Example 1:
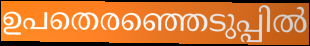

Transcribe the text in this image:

ഉപതെരഞ്ഞെടുപ്പിൽ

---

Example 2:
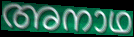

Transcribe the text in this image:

അനാഥ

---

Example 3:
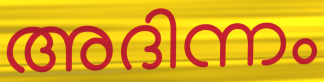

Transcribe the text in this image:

അദിന്നം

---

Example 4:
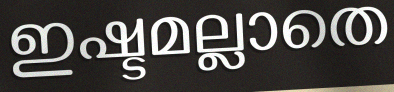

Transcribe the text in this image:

ഇഷ്ടമല്ലാതെ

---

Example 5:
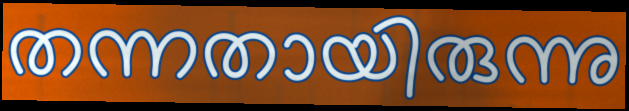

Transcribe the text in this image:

തന്നതായിരുന്നു